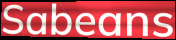
Sabeans